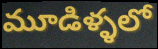
మూడిళ్ళలో